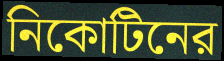
নিকোটিনের